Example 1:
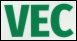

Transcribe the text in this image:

VEC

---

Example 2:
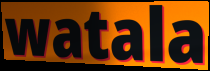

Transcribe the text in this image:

watala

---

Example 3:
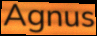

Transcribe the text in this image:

Agnus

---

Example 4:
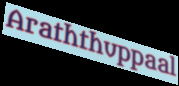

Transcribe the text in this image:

Araththuppaal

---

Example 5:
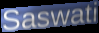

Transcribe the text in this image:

Saswati